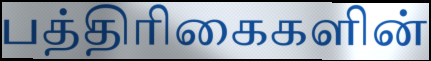
பத்திரிகைகளின்